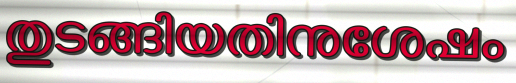
തുടങ്ങിയതിനുശേഷം